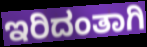
ಇರಿದಂತಾಗಿ